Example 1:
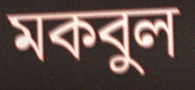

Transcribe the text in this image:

মকবুল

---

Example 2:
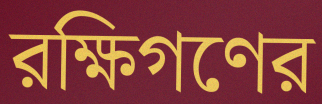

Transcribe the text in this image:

রক্ষিগণের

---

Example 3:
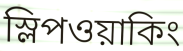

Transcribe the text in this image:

স্লিপওয়াকিং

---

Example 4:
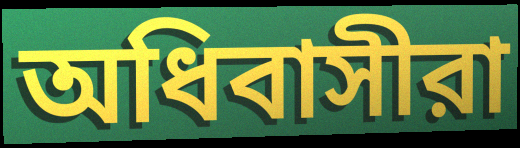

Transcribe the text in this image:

অধিবাসীরা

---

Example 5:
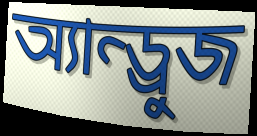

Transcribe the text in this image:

অ্যান্ড্রুজ